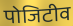
पोजिटीव